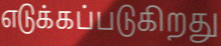
எடுக்கப்படுகிறது